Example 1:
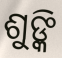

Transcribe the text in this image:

ଶୁଙ୍କି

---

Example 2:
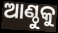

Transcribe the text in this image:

ଆଣ୍ଠୁକୁ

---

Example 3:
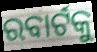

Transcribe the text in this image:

ରବାର୍ଟକୁ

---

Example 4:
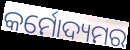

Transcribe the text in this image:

କର୍ମୋଦ୍ୟମର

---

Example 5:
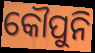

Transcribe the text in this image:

କୌପୁନି